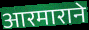
आरमाराने